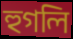
হুগলি